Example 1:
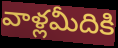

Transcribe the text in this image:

వాళ్లమీదికి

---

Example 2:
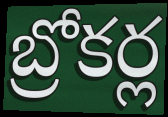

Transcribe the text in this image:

బ్రోకర్ల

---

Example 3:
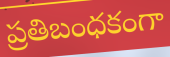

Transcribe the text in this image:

ప్రతిబంధకంగా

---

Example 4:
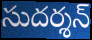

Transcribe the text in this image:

సుదర్శన్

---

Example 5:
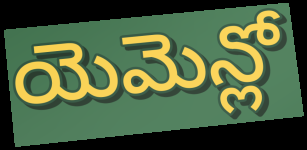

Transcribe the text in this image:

యెమెన్లో